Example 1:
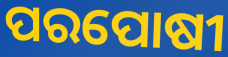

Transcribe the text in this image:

ପରପୋଷୀ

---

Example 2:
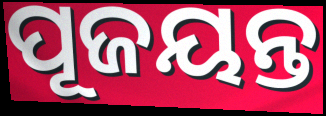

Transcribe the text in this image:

ପୂଜୟନ୍ତ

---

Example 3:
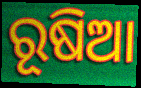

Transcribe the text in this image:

ରୂଷିଆ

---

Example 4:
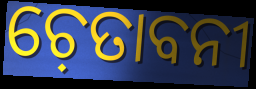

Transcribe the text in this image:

ଚ଼େତାବନୀ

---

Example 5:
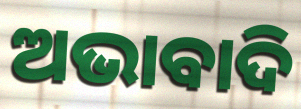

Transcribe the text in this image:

ଅଭାବାଦି